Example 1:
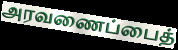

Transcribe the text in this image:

அரவணைப்பைத்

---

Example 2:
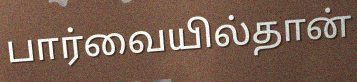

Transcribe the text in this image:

பார்வையில்தான்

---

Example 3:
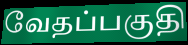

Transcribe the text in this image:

வேதப்பகுதி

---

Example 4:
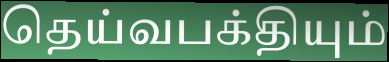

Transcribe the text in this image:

தெய்வபக்தியும்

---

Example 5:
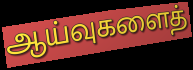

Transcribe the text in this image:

ஆய்வுகளைத்